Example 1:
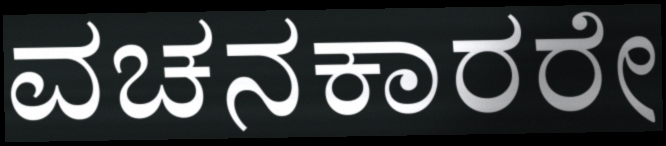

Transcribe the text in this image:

ವಚನಕಾರರೇ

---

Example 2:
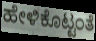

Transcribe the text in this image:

ಹೇಳಿಕೊಟ್ಟಂತೆ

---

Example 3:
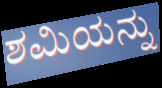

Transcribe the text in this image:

ಶಮಿಯನ್ನು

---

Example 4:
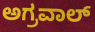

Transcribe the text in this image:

ಅಗ್ರವಾಲ್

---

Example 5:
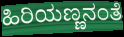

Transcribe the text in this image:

ಹಿರಿಯಣ್ಣನಂತೆ